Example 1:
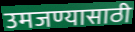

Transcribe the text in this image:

उमजण्यासाठी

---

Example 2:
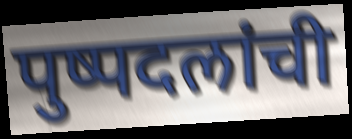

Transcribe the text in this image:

पुष्पदलांची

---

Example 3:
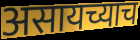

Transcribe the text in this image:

असायच्याच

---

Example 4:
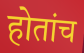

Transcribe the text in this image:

होतांच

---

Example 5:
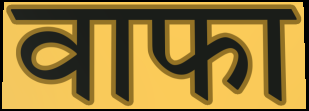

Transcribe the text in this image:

वाफा